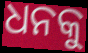
ଧନକୁ